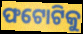
ଫଟୋଟିକୁ